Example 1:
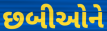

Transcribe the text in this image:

છબીઓને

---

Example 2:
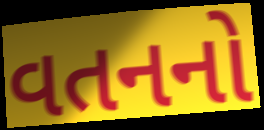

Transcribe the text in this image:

વતનનો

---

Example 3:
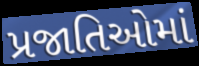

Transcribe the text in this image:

પ્રજાતિઓમાં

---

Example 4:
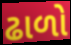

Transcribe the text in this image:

ઢાળો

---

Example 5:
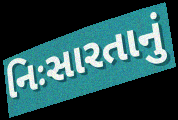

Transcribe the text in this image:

નિઃસારતાનું